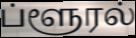
ப்ளூரல்